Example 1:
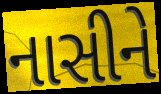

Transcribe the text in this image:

નાસીને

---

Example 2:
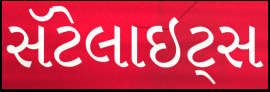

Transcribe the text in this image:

સૅટેલાઇટ્સ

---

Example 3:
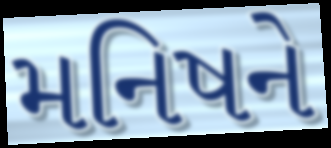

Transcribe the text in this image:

મનિષને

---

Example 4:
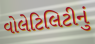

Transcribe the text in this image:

વોલેટિલિટીનું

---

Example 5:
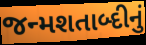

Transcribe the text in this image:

જન્મશતાબ્દીનું